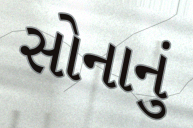
સોનાનું